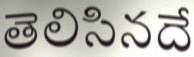
తెలిసినదే